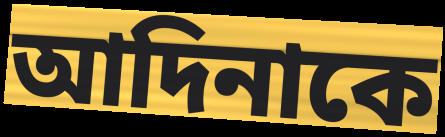
আদিনাকে